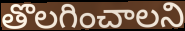
తొలగించాలని